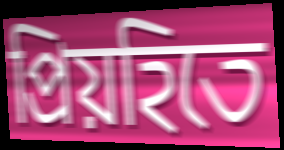
প্রিয়হিতে